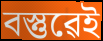
বস্তুৱেই